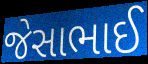
જેસાભાઈ